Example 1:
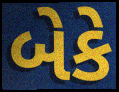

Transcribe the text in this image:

બેકે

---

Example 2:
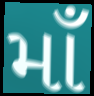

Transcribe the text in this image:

માઁ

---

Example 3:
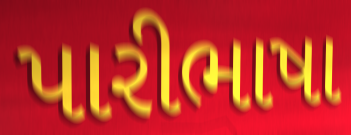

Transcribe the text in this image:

પારીભાષા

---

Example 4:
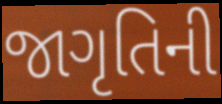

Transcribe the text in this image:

જાગૃતિની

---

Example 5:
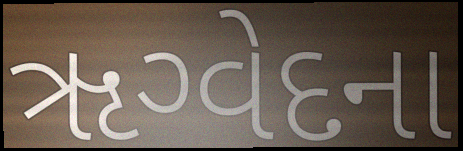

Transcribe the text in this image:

ૠગ્વેદના